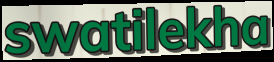
swatilekha